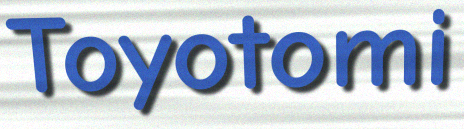
Toyotomi